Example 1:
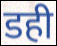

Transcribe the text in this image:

डही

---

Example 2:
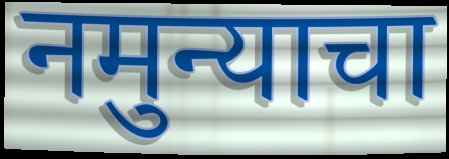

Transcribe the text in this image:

नमुन्याचा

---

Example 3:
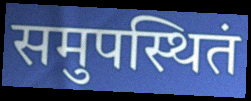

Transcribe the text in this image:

समुपस्थितं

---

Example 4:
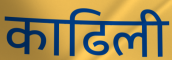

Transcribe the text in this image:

काढिली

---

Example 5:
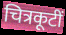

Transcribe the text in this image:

चित्रकूटीं